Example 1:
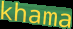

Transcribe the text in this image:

khama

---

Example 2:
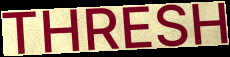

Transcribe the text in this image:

THRESH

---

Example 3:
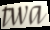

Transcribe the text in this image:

twa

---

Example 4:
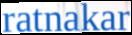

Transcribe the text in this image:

ratnakar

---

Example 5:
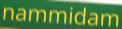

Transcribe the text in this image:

nammidam